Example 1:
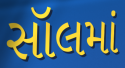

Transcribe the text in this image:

સૉલમાં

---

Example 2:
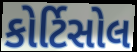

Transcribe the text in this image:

કોર્ટિસોલ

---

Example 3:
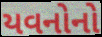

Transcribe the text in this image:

યવનોનો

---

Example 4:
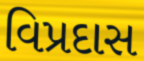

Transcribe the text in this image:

વિપ્રદાસ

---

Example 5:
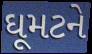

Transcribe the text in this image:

ઘૂમટને